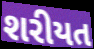
શરીયત